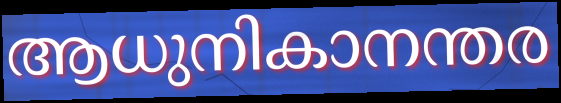
ആധുനികാനന്തര